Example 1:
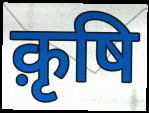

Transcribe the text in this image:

क़ृषि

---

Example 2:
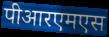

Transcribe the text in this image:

पीआरएमएस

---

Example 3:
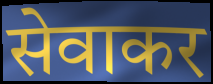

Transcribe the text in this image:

सेवाकर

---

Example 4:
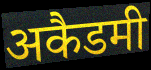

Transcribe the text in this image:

अकैडमी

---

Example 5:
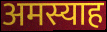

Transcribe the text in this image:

अमस्याह